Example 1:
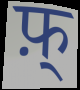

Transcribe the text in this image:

फ़्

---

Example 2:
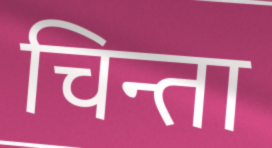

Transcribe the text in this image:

चिन्ता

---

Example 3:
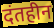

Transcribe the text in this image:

दंतहीन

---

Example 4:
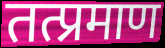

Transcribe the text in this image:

तत्प्रमाण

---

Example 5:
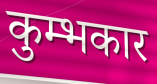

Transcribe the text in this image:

कुम्भकार